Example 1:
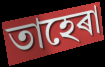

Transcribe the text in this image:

তাহেৰা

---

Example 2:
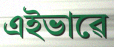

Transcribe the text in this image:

এইভাৱে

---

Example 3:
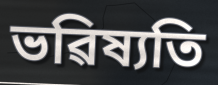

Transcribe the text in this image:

ভৱিষ্যতি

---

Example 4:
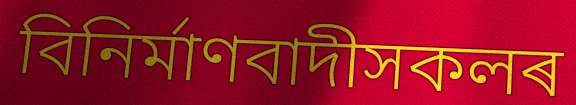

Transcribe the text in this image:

বিনিৰ্মাণবাদীসকলৰ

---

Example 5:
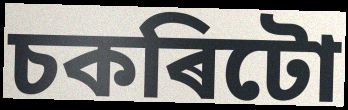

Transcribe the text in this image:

চকৰিটো